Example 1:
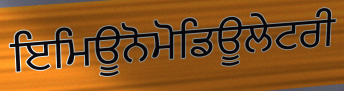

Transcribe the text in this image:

ਇਮਿਊਨੋਮੋਡਿਊਲੇਟਰੀ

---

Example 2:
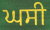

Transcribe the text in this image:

ਘਸੀ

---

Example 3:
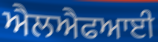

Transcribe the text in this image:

ਐਲਐਫਆਈ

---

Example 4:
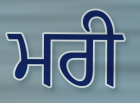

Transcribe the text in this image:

ਮਰੀ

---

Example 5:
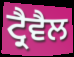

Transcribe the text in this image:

ਟ੍ਰੈਵੈਲ